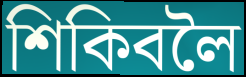
শিকিবলৈ